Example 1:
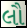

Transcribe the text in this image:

લૌ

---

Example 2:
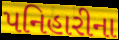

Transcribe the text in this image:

પનિહારીના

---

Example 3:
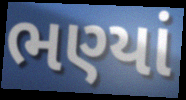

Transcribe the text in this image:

ભણ્યાં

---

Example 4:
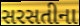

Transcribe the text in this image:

સરસતીના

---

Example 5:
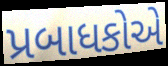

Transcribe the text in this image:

પ્રબાધકોએ